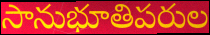
సానుభూతిపరుల